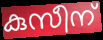
കുസീന്